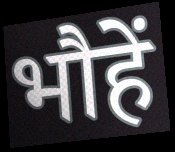
भौहें